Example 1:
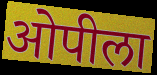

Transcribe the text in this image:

ओपीला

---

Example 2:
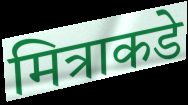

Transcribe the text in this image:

मित्राकडे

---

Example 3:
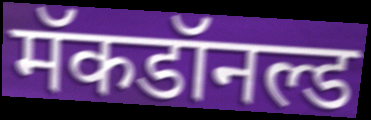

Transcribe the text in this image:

मॅकडॉनल्ड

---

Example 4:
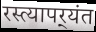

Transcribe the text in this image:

रस्त्यापर्यंत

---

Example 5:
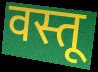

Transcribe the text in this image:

वस्तू